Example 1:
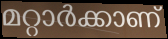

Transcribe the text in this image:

മറ്റാർക്കാണ്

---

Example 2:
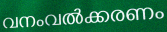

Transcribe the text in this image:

വനംവൽക്കരണം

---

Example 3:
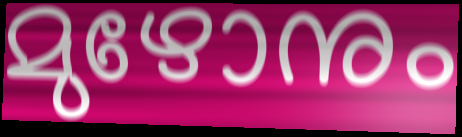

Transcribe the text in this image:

മുഴോനും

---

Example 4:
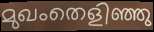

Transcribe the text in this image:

മുഖംതെളിഞ്ഞു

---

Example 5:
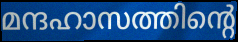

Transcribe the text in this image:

മന്ദഹാസത്തിന്റെ